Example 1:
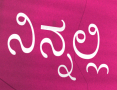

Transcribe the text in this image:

ನಿನ್ನಲ್ಲಿ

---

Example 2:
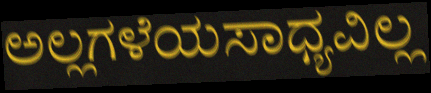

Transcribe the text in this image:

ಅಲ್ಲಗಳೆಯಸಾಧ್ಯವಿಲ್ಲ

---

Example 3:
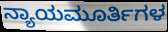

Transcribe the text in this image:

ನ್ಯಾಯಮೂರ್ತಿಗಳ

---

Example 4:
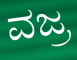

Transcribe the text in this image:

ವಜ್ರ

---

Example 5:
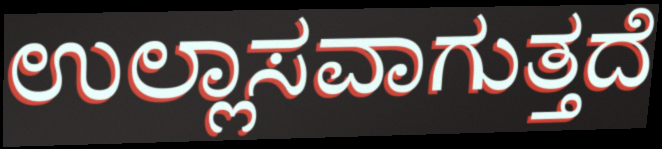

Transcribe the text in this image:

ಉಲ್ಲಾಸವಾಗುತ್ತದೆ